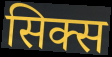
सिक्स